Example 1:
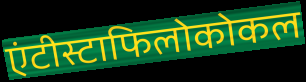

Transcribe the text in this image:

एंटीस्टाफिलोकोकल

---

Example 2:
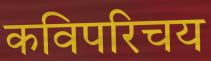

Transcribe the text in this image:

कविपरिचय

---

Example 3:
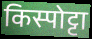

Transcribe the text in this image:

किस्पोट्टा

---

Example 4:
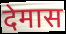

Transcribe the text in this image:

देमास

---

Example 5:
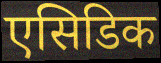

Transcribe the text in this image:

एसिडिक